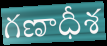
గణాధీశ